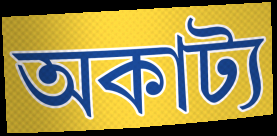
অকাট্য